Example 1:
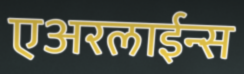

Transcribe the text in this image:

एअरलाईन्स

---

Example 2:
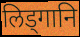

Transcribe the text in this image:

लिड्गानि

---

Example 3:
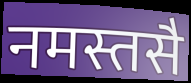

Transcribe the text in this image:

नमस्तसै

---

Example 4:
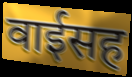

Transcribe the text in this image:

वाईसह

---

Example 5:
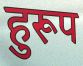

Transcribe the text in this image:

हुरूप